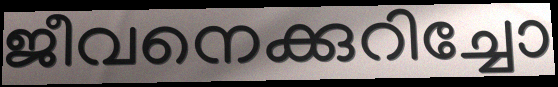
ജീവനെക്കുറിച്ചോ